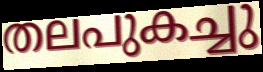
തലപുകച്ചു